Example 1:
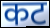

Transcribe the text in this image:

कट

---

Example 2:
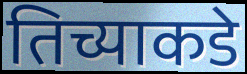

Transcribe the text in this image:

तिच्याकडे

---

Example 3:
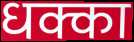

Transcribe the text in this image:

धक्का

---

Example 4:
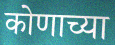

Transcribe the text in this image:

कोणाच्या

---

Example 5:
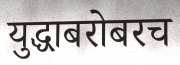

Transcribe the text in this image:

युद्धाबरोबरच